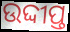
ଉଦ୍ଦୀପ୍ତ